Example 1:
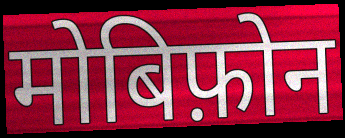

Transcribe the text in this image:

मोबिफ़ोन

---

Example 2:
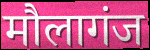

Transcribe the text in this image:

मौलागंज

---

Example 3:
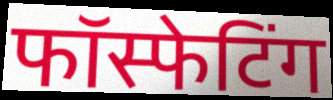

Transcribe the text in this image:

फॉस्फेटिंग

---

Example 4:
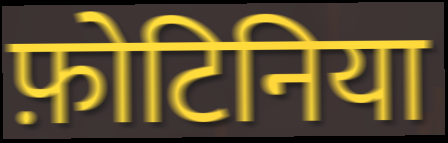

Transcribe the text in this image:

फ़ोटिनिया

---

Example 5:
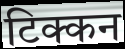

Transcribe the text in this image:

टिक्कन